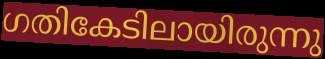
ഗതികേടിലായിരുന്നു